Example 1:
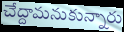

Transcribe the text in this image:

చేద్దామనుకున్నారు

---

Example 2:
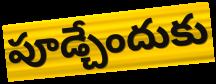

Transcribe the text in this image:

పూడ్చేందుకు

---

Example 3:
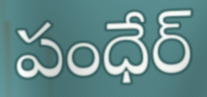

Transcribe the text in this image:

పంధేర్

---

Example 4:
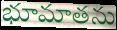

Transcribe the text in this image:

భూమాతను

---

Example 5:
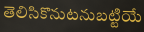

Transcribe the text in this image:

తెలిసికొనుటనుబట్టియే